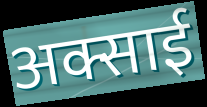
अक्साई